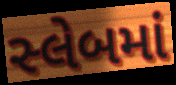
સ્લેબમાં